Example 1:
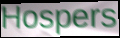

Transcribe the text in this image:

Hospers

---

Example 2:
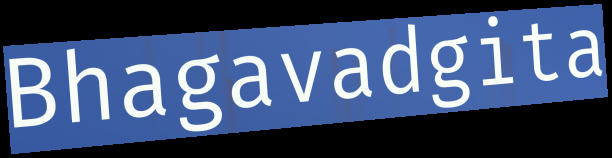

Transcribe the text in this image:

Bhagavadgita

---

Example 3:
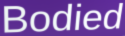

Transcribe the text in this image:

Bodied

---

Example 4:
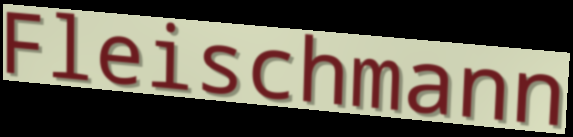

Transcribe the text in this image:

Fleischmann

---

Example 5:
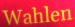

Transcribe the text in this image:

Wahlen